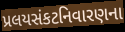
પ્રલયસંકટનિવારણના